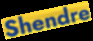
Shendre